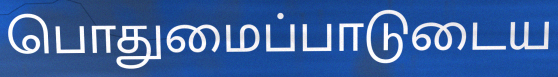
பொதுமைப்பாடுடைய